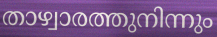
താഴ്വാരത്തുനിന്നും